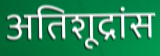
अतिशूद्रांस